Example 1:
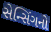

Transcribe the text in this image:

સેન્સિંગનો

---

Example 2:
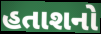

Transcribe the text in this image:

હતાશનો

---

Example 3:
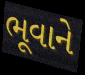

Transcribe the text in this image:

ભૂવાને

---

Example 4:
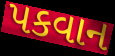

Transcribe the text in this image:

પકવાન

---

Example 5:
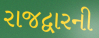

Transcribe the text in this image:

રાજદ્વારની